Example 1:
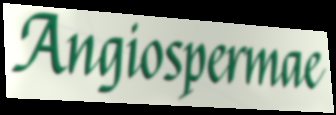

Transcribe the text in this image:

Angiospermae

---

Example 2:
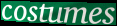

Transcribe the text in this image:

costumes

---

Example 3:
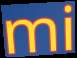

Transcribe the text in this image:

mi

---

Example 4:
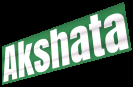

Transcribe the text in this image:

Akshata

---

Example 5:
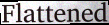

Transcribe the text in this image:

Flattened